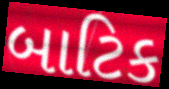
બાટિક